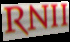
RNII